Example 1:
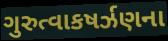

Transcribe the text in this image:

ગુરુત્વાકષર્ઝણના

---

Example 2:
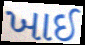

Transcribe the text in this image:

ખાઈ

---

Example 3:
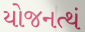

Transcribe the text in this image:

યોજનત્થં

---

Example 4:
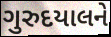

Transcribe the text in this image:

ગુરુદયાલને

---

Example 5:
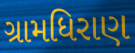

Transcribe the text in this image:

ગ્રામધિરાણ